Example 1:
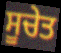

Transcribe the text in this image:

ਸੂਚੇਤ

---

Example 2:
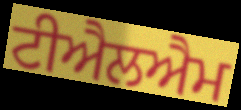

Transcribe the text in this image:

ਟੀਐਲਐਮ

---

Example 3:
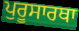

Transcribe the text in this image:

ਪੁਰੂਸਾਰਥਾ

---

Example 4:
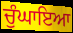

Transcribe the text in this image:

ਚੁੰਘਾਇਆ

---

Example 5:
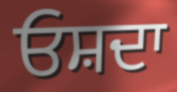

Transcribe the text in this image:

ਓਸ਼ਦਾ